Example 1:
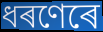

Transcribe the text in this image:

ধৰণেৰে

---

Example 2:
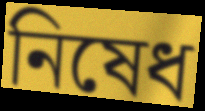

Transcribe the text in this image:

নিষেধ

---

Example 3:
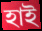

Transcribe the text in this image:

হাই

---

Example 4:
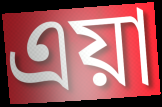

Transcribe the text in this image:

এয়া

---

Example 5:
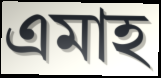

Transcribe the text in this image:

এমাহ